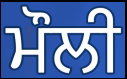
ਮੌਲੀ